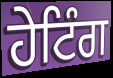
ਹੇਟਿੰਗ